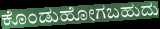
ಕೊಂಡುಹೋಗಬಹುದು